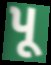
પૂ